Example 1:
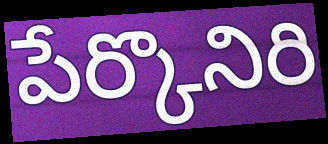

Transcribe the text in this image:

పేర్కొనిరి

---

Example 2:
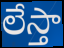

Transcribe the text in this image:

లేస్తా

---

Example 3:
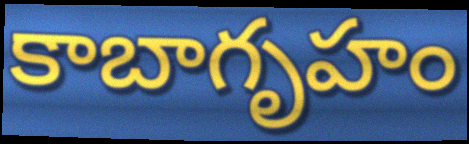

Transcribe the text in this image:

కాబాగృహం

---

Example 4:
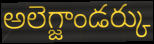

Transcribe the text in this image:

అలెగ్జాండర్కు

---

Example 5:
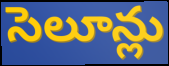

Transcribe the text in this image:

సెలూన్లు